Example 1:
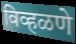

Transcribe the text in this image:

विव्हळणे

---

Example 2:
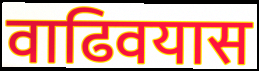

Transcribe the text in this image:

वाढिवयास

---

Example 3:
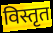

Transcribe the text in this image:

विस्तृत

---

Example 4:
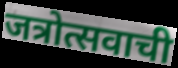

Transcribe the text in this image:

जत्रोत्सवाची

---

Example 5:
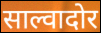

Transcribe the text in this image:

साल्वादोर